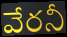
వేరనీ